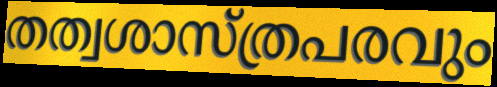
തത്വശാസ്ത്രപരവും